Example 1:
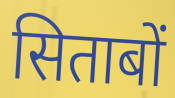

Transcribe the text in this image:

सिताबों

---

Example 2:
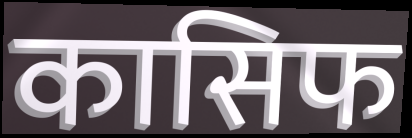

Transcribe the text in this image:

कासिफ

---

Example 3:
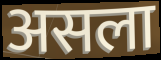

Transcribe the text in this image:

असला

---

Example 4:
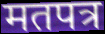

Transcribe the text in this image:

मतपत्र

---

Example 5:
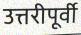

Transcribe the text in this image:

उत्तरीपूर्वी